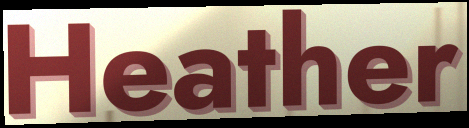
Heather